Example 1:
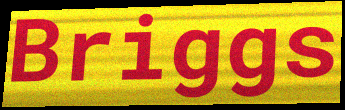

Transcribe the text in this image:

Briggs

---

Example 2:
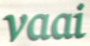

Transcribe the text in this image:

vaai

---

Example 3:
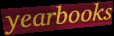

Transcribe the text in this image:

yearbooks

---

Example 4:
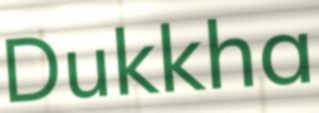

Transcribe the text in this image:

Dukkha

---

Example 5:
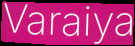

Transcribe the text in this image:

Varaiya